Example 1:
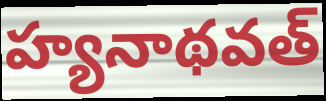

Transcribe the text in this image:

హ్యనాథవత్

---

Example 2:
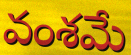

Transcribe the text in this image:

వంశమే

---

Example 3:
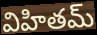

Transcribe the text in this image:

విహితమ్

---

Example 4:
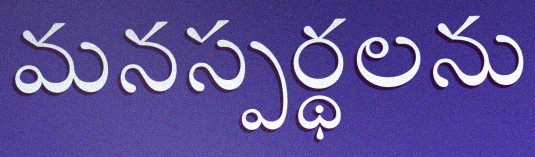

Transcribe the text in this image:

మనస్పర్థలను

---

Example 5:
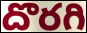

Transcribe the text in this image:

దొరగి